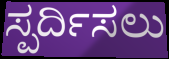
ಸ್ಪರ್ದಿಸಲು